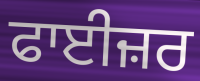
ਫਾਈਜ਼ਰ